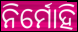
ନିର୍ମୋହି